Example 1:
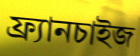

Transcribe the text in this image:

ফ্র্যানচাইজ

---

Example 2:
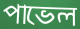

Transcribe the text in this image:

পাভেল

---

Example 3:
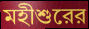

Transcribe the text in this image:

মহীশুরের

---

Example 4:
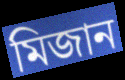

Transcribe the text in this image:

মিজান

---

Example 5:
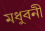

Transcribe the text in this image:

মধুবনী